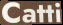
Catti